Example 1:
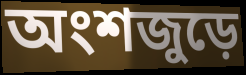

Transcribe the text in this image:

অংশজুড়ে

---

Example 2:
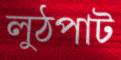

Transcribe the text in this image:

লুঠপাট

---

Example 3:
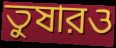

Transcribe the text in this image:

তুষারও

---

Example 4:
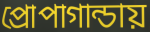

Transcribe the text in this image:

প্রোপাগান্ডায়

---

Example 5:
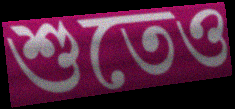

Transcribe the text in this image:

শুতেও